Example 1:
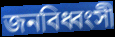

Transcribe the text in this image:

জনবিধ্বংসী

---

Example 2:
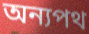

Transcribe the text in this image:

অন্যপথ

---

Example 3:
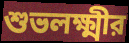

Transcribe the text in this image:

শুভলক্ষ্মীর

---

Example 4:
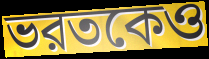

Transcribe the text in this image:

ভরতকেও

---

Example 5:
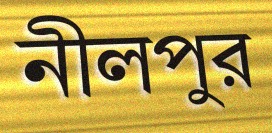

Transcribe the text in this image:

নীলপুর